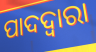
ପାଦଦ୍ଵାରା